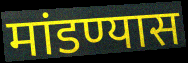
मांडण्यास